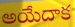
అయేదాక